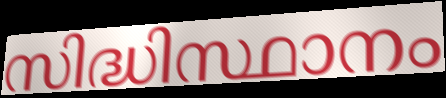
സിദ്ധിസ്ഥാനം